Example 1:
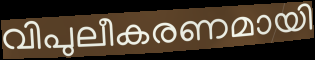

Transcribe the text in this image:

വിപുലീകരണമായി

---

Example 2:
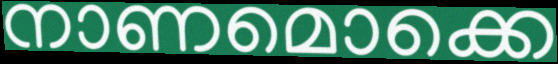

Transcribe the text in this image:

നാണമൊക്കെ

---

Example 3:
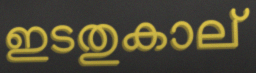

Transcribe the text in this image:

ഇടതുകാല്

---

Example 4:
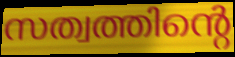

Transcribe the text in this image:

സത്വത്തിന്റെ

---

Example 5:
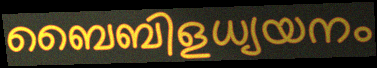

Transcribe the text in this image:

ബൈബിളധ്യയനം